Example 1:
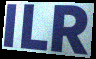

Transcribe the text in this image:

ILR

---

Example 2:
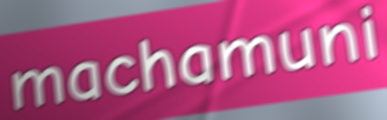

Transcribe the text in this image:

machamuni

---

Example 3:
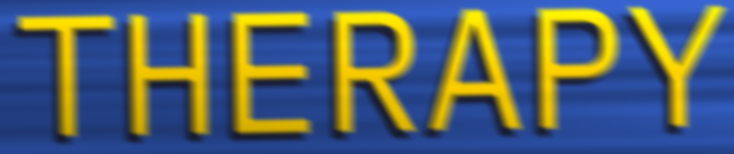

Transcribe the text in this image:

THERAPY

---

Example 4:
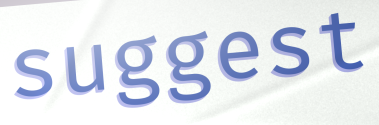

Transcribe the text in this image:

suggest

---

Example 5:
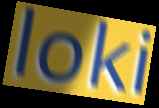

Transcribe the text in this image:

loki